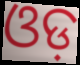
ଓଡ଼